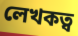
লেখকত্ব